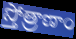
స్తోత్రాణాం